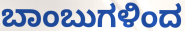
ಬಾಂಬುಗಳಿಂದ